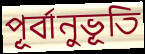
পূর্বানুভূতি